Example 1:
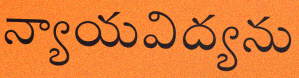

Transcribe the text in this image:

న్యాయవిద్యను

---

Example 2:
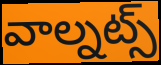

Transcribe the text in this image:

వాల్నట్స్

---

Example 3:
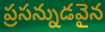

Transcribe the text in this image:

ప్రసన్నుడవైన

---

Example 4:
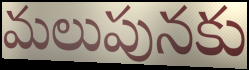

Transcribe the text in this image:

మలుపునకు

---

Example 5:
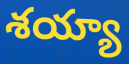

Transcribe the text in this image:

శయ్యా